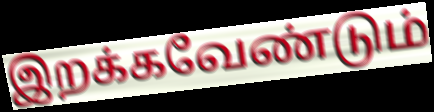
இறக்கவேண்டும்